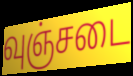
வுஞ்சடை